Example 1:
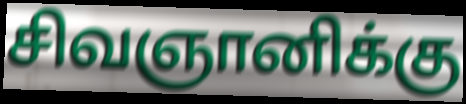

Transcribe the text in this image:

சிவஞானிக்கு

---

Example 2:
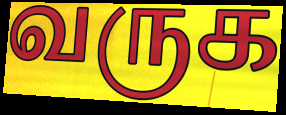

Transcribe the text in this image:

வருக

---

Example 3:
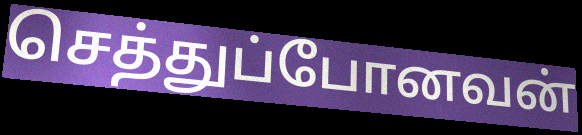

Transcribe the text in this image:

செத்துப்போனவன்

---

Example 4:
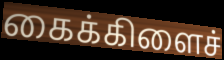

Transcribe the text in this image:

கைக்கிளைச்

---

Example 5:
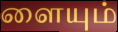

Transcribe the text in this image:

ளையும்